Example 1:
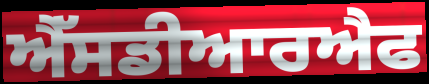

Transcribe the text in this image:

ਐੱਸਡੀਆਰਐਫ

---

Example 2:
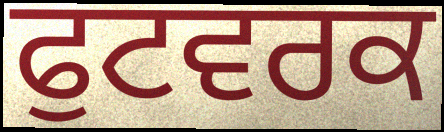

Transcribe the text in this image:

ਫੁਟਵਰਕ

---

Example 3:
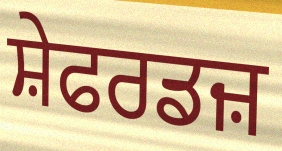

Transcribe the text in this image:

ਸ਼ੇਫਰਡਜ਼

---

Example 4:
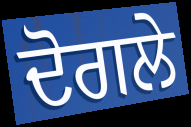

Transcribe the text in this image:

ਦੋਗਲੇ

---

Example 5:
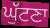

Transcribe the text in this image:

ਘੁੱਟਣਾ